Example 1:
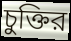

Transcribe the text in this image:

চুক্তির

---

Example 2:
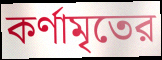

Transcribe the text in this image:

কর্ণামৃতের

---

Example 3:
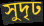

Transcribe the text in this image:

সুদৃঢ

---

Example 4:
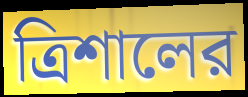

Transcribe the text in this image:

ত্রিশালের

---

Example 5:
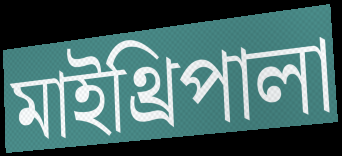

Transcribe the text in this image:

মাইথ্রিপালা